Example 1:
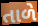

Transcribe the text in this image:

તાળે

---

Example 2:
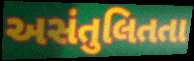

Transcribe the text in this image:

અસંતુલિતતા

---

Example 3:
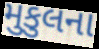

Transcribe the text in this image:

મુકુલના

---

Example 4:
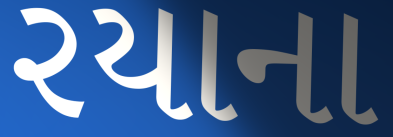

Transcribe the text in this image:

રયાના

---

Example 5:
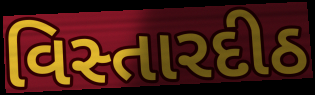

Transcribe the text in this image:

વિસ્તારદીઠ